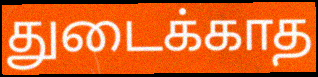
துடைக்காத